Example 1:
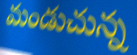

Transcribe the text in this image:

మండుచున్న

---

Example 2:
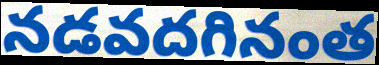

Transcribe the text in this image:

నడవదగినంత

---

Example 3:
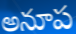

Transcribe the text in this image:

అనూప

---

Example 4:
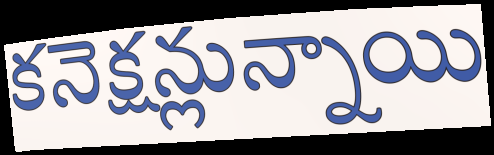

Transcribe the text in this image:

కనెక్షన్లున్నాయి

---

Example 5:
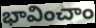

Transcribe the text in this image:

భావించాం